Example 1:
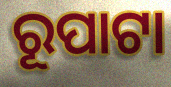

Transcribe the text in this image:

ରୂପାଟା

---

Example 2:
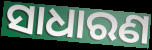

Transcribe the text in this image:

ସାଧାରଣ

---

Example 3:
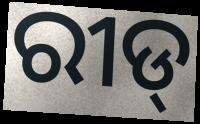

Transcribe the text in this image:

ରୀଡ୍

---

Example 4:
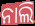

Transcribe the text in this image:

ନାଲି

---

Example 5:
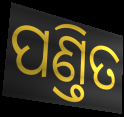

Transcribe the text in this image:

ପଣ୍ତିତ